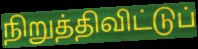
நிறுத்திவிட்டுப்